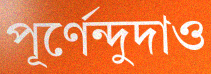
পূর্ণেন্দুদাও